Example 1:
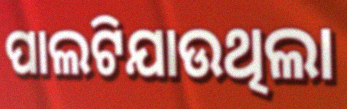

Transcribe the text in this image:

ପାଲଟିଯାଉଥିଲା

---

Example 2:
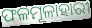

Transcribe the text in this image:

ଫଳମୂଳାହାରୀ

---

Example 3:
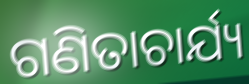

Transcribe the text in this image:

ଗଣିତାଚାର୍ଯ୍ୟ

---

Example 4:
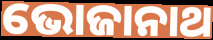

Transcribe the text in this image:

ଭୋଜାନାଥ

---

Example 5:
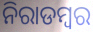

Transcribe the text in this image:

ନିରାଡମ୍ଵର